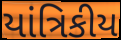
યાંત્રિકીય